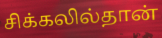
சிக்கலில்தான்